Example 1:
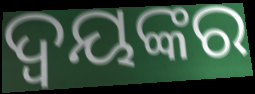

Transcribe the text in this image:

ଦ୍ବୟଙ୍କର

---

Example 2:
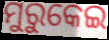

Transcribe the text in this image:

ମୁରୁକେଇ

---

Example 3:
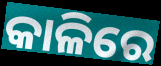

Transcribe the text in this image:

କାଳିରେ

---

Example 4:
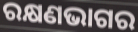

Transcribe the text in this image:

ରକ୍ଷଣଭାଗର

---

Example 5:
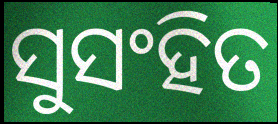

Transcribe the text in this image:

ସୁସଂହିତ